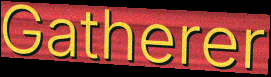
Gatherer